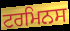
ਟਰਮਿਨਸ